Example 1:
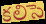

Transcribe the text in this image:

కలిసె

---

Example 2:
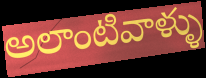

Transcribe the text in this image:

అలాంటివాళ్ళు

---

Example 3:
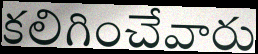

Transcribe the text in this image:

కలిగించేవారు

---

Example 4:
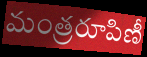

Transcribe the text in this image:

మంత్రరూపిణీ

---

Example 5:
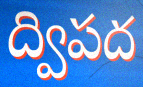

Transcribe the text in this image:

ద్విపద